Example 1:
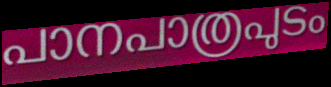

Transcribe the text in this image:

പാനപാത്രപുടം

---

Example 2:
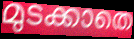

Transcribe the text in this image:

മുടക്കാതെ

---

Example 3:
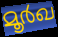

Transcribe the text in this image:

മൂർഖ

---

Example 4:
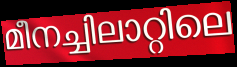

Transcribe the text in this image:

മീനച്ചിലാറ്റിലെ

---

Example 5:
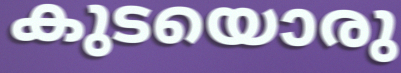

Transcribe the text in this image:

കുടയൊരു